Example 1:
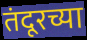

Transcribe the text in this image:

तंदूरच्या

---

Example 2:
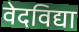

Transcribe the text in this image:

वेदविद्या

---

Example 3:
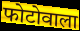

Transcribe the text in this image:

फोटोवाला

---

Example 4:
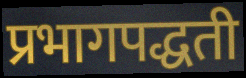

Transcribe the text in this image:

प्रभागपद्धती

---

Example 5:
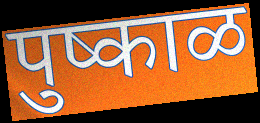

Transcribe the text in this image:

पुष्काळ